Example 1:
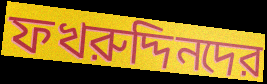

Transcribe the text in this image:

ফখরুদ্দিনদের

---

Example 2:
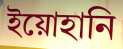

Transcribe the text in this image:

ইয়োহানি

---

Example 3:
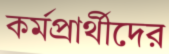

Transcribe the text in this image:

কর্মপ্রার্থীদের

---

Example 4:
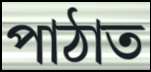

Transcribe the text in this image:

পাঠাত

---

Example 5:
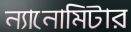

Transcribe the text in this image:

ন্যানোমিটার